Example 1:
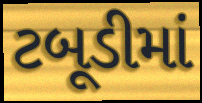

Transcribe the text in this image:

ટબૂડીમાં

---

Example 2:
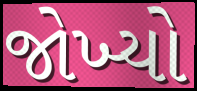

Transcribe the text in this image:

જોખ્યો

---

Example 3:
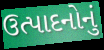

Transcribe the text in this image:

ઉત્પાદનોનું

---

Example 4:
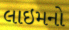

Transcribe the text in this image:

લાઇમનો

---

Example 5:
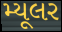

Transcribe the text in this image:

મ્યૂલર